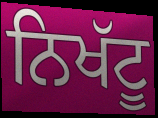
ਨਿਖੱਟੂ